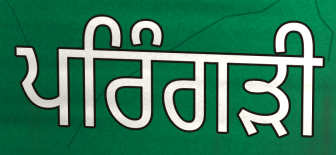
ਪਰਿੰਗੜੀ